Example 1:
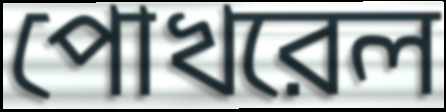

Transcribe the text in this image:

পোখরেল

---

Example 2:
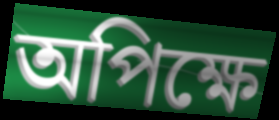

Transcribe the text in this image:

অপিক্ষে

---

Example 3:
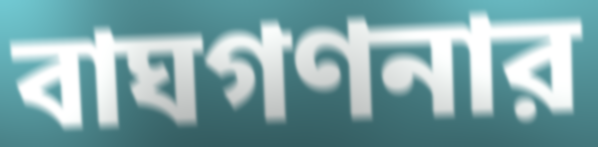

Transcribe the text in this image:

বাঘগণনার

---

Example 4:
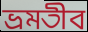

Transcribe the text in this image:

ভ্রমতীব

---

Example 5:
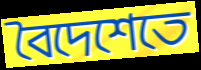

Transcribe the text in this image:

বৈদেশেতে